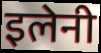
इलेनी